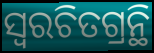
ସ୍ଵରଚିତଗ୍ରନ୍ଥି